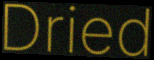
Dried